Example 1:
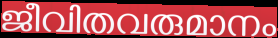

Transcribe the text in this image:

ജീവിതവരുമാനം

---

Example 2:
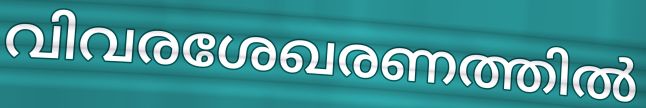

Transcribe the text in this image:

വിവരശേഖരണത്തിൽ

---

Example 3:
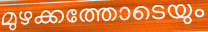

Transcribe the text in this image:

മുഴക്കത്തോടെയും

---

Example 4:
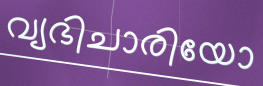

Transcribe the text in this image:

വ്യഭിചാരിയോ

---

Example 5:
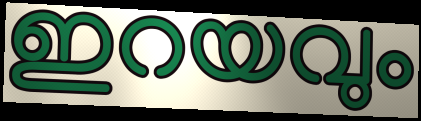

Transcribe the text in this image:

ഇറയവും